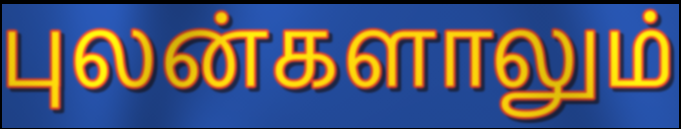
புலன்களாலும்